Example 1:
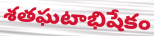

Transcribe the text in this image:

శతఘటాభిషేకం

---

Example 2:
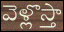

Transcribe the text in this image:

వెళ్లొస్తా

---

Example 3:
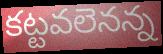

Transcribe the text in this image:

కట్టవలెనన్న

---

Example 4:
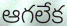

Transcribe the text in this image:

ఆగలేక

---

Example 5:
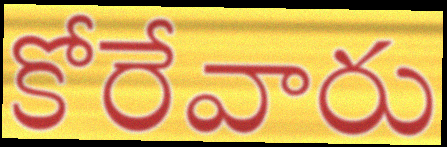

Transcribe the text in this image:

కోరేవారు